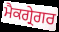
ਮੈਕਗ੍ਰੇਗਰ